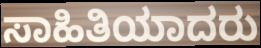
ಸಾಹಿತಿಯಾದರು